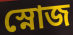
স্নোজ